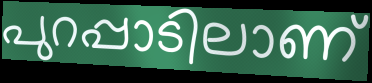
പുറപ്പാടിലാണ്